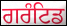
ਗਰੰਟਿਡ